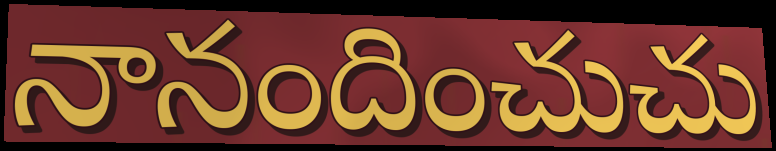
నానందించుచు